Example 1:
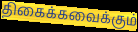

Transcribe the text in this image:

திகைக்கவைக்கும்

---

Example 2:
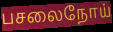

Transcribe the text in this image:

பசலைநோய்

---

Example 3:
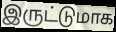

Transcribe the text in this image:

இருட்டுமாக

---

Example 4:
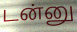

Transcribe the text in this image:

டன்னு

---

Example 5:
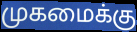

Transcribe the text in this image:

முகமைக்கு